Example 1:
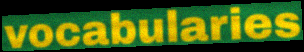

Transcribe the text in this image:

vocabularies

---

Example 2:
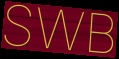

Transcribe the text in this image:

SWB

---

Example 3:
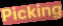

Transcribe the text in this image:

Picking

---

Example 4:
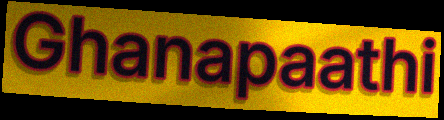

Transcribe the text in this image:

Ghanapaathi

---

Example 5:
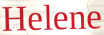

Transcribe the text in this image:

Helene